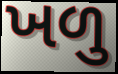
ખળુ